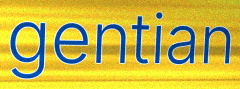
gentian